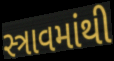
સ્ત્રાવમાંથી